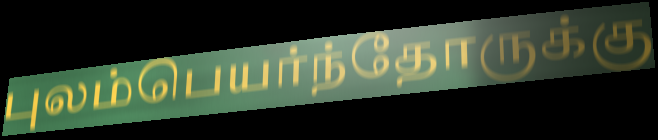
புலம்பெயர்ந்தோருக்கு